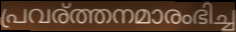
പ്രവര്ത്തനമാരംഭിച്ച